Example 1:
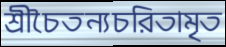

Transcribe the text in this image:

শ্রীচৈতন্যচরিতামৃত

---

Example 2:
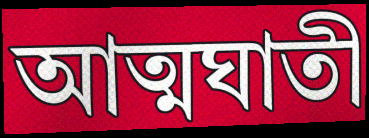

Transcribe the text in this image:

আত্মঘাতী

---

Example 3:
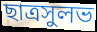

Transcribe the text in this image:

ছাত্রসুলভ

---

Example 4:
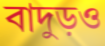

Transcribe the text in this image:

বাদুড়ও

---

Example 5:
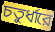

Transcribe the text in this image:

চতুর্ধারে